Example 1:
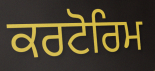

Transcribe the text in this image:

ਕਰਟੋਰਿਮ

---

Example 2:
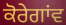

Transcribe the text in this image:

ਕੋਰੇਗਾਂਵ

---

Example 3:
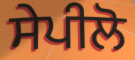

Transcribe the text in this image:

ਸੇਪੀਲੋ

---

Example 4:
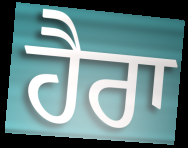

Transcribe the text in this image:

ਹੈਰਾ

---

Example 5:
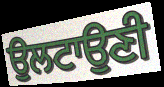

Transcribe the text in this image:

ਉਲਟਾਉਣੀ